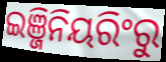
ଇଞ୍ଜିନିୟରିଂରୁ